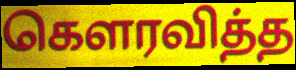
கெளரவித்த